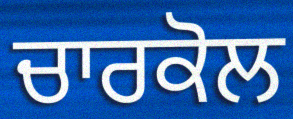
ਚਾਰਕੋਲ